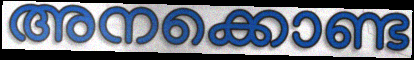
അനക്കൊണ്ട